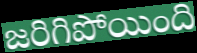
జరిగిపోయింది